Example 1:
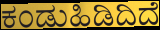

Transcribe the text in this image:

ಕಂಡುಹಿಡಿದಿದೆ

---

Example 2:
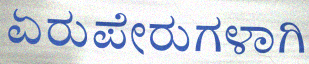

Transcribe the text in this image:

ಏರುಪೇರುಗಳಾಗಿ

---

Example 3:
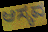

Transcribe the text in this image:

ಆಸ್ಕವ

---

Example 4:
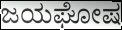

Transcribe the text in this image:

ಜಯಘೋಷ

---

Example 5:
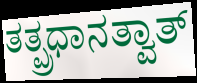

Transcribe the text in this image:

ತತ್ಪ್ರಧಾನತ್ವಾತ್